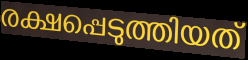
രക്ഷപ്പെടുത്തിയത്